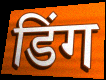
डिंग